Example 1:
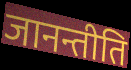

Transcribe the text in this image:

जानन्तीति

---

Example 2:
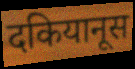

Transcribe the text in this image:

दकियानूस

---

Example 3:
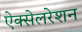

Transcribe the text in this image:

ऐक्सेलरेशन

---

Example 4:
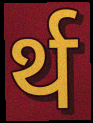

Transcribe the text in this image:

र्थ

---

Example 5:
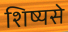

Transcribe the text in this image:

शिष्यसे